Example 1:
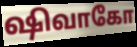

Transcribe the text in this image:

ஷிவாகோ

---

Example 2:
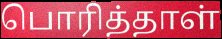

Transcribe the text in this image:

பொரித்தாள்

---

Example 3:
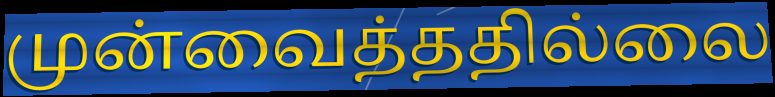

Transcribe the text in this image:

முன்வைத்ததில்லை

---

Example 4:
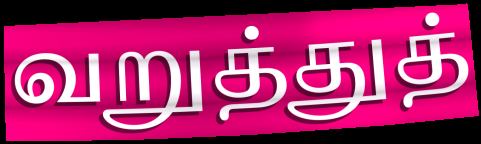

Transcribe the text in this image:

வறுத்துத்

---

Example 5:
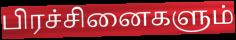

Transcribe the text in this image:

பிரச்சினைகளும்